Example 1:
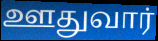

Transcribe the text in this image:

ஊதுவார்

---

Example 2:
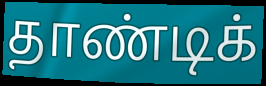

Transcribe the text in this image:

தாண்டிக்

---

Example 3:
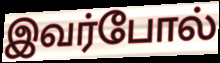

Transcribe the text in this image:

இவர்போல்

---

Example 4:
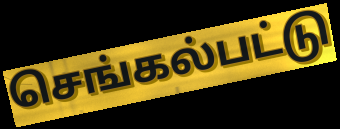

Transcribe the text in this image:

செங்கல்பட்டு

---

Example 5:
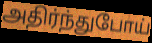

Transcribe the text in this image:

அதிர்ந்துபோய்